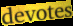
devotes